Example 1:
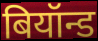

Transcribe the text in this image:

बियॉन्ड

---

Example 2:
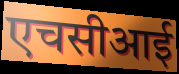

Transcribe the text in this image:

एचसीआई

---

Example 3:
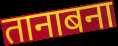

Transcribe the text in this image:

तानाबना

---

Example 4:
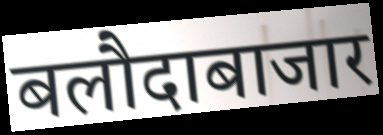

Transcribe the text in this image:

बलौदाबाजार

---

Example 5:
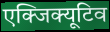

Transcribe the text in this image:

एक्जिक्यूटिव